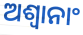
ଅଶ୍ଵାନାଂ